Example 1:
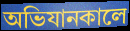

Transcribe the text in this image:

অভিযানকালে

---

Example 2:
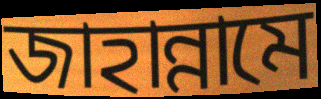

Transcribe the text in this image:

জাহান্নামে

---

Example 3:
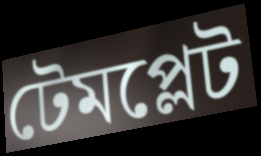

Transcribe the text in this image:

টেমপ্লেট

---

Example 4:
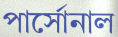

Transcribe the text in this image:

পার্সোনাল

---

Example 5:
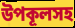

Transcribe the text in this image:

উপকূলসহ